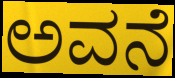
ಅವನೆ